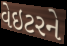
વેઇટરને